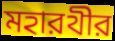
মহারথীর